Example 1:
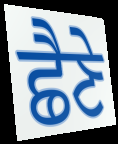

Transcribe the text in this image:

ਛੈਣੇ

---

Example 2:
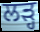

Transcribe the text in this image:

ਲੜ੍ਹ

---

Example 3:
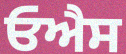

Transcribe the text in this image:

ਓਐਸ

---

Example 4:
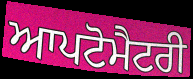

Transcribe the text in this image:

ਆਪਟੋਮੈਟਰੀ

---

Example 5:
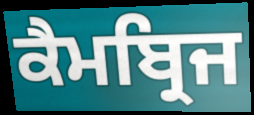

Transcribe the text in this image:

ਕੈਮਬ੍ਰਿਜ